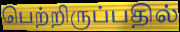
பெற்றிருப்பதில்